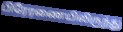
பிரேரணையிலிருந்து